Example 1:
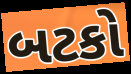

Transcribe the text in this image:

બટકો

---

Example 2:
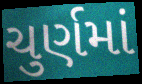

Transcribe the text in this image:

ચુર્ણમાં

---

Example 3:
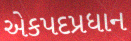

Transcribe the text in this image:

એકપદપ્રધાન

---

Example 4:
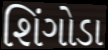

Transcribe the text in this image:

શિંગોડા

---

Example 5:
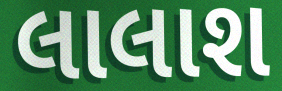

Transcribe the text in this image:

લાલાશ